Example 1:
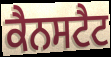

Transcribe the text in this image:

ਕੈਨਸਟੈਟ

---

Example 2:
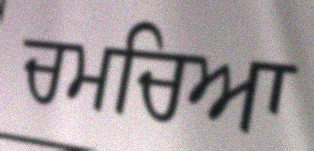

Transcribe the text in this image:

ਚਮਚਿਆ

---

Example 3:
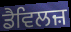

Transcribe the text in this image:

ਡੈਵਿਲਜ਼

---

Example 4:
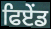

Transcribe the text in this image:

ਫਿਏਂਡ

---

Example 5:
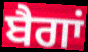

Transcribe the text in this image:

ਬੈਗਾਂ